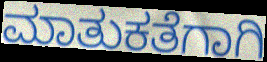
ಮಾತುಕತೆಗಾಗಿ